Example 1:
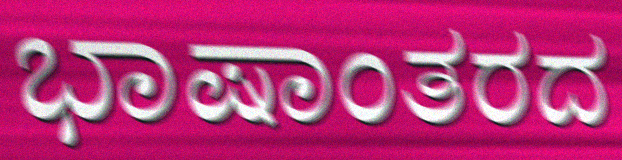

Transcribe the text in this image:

ಭಾಷಾಂತರದ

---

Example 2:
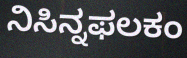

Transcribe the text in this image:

ನಿಸಿನ್ನಫಲಕಂ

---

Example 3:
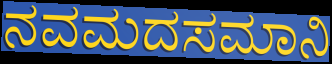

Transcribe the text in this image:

ನವಮದಸಮಾನಿ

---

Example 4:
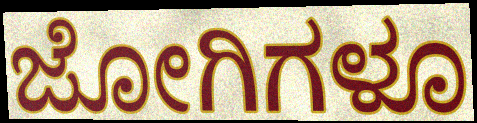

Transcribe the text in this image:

ಜೋಗಿಗಳೂ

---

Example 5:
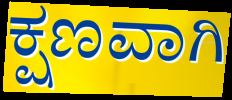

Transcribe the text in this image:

ಕ್ಷಣವಾಗಿ